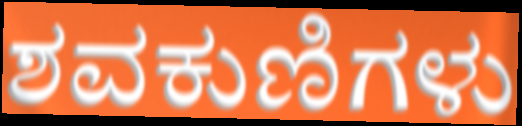
ಶವಕುಣಿಗಳು